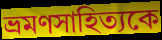
ভ্রমণসাহিত্যকে